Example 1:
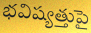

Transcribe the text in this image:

భవిష్యత్తుపై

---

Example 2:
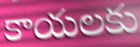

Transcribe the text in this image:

కాయలకు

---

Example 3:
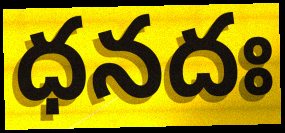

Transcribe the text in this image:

ధనదః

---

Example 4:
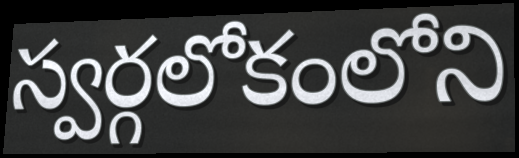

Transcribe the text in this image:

స్వర్గలోకంలోని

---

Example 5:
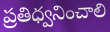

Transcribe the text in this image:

ప్రతిధ్వనించాలి